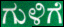
ಗುಳಿಗೆ